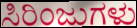
ಸಿರಿಂಜುಗಳು